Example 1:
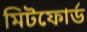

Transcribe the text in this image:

মিটফোর্ড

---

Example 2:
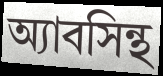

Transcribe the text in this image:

অ্যাবসিন্থ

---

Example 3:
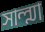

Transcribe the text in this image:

সাল্মা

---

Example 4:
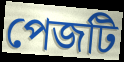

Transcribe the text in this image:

পেজটি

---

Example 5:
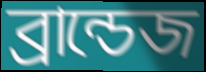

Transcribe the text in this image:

ব্রান্ডেজ